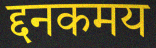
द्दनकमय